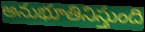
అనుభూతినిస్తుంది